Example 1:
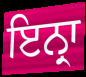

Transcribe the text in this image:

ਇਨ੍ਰਾ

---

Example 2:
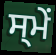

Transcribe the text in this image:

ਸ੍ਮੇਂ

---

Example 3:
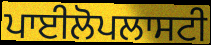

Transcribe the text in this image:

ਪਾਈਲੋਪਲਾਸਟੀ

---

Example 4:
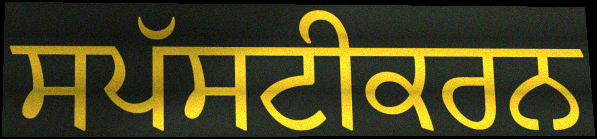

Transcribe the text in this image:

ਸਪੱਸਟੀਕਰਨ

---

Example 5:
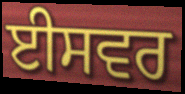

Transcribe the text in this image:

ਈਸਵਰ